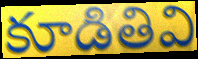
కూడితివి